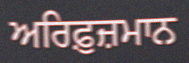
ਅਰਿਫ਼ੁਜ਼ਮਾਨ